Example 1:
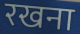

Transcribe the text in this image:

रखना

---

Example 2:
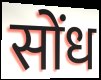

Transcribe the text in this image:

सोंध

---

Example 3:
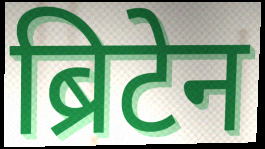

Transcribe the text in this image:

ब्रिटेन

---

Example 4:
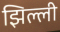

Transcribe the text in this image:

झिल्ली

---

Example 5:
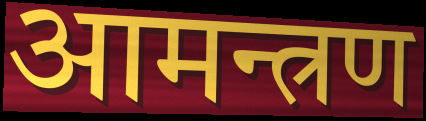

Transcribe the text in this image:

आमन्त्रण